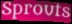
Sprouts